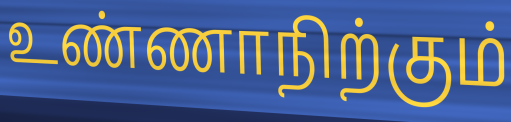
உண்ணாநிற்கும்